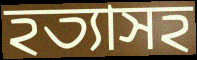
হত্যাসহ